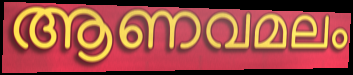
ആണവമലം